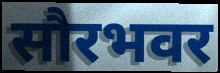
सौरभवर